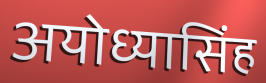
अयोध्यासिंह